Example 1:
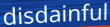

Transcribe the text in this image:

disdainful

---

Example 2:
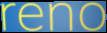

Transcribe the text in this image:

reno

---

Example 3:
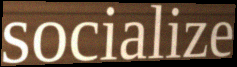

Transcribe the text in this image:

socialize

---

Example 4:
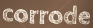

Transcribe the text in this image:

corrode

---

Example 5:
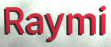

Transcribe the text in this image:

Raymi